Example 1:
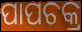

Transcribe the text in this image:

ପାପଚକ୍ର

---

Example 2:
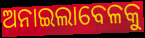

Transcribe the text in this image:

ଅନାଇଲାବେଳକୁ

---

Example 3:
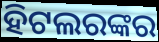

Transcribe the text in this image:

ହିଟଲରଙ୍କର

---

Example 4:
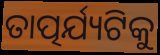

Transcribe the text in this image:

ତାତ୍ପର୍ଯ୍ୟଟିକୁ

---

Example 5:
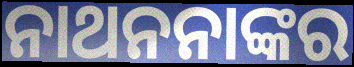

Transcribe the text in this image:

ନାଥନନାଙ୍କର